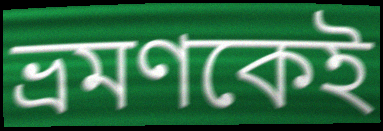
ভ্রমণকেই